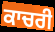
ਕਾਚਰੀ